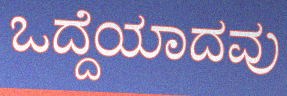
ಒದ್ದೆಯಾದವು